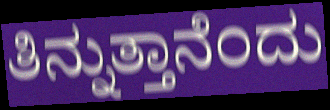
ತಿನ್ನುತ್ತಾನೆಂದು